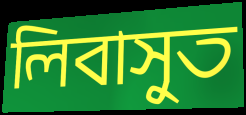
লিবাসুত